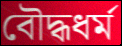
বৌদ্ধধৰ্ম